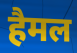
हैमल